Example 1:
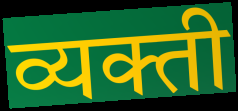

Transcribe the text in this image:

व्यक्‍ती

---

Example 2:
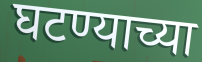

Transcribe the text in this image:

घटण्याच्या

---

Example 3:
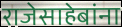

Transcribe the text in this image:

राजेसाहेबांना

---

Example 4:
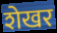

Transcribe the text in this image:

शेखर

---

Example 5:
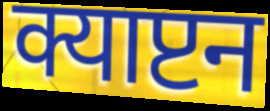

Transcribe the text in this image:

क्याप्टन